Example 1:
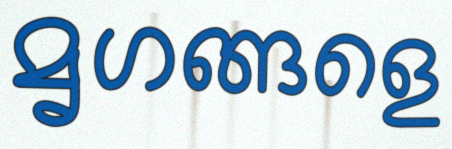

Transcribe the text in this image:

മൃഗങ്ങളെ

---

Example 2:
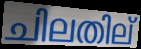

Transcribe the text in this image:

ചിലതില്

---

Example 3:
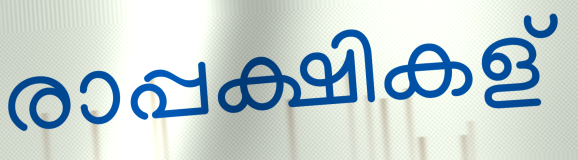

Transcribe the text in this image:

രാപ്പക്ഷികള്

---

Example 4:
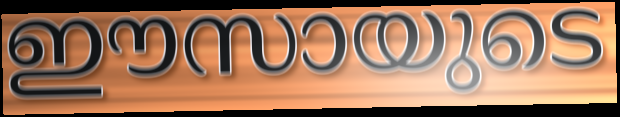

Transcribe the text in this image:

ഈസായുടെ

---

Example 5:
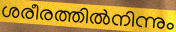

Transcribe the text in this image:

ശരീരത്തിൽനിന്നും